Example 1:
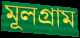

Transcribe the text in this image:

মূলগ্রাম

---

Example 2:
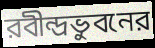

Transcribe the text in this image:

রবীন্দ্রভুবনের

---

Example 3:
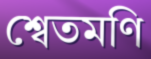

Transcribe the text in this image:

শ্বেতমণি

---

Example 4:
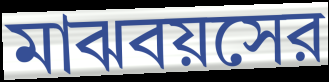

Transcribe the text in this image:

মাঝবয়সের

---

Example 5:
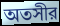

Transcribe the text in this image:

অতসীর